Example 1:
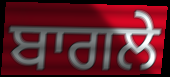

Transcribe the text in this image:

ਬਾਗਲੇ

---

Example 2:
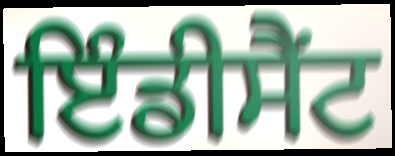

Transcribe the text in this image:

ਇੰਡੀਸੈਂਟ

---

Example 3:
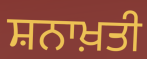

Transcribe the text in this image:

ਸ਼ਨਾਖ਼ਤੀ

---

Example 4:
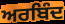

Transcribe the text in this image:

ਅਰਬਿੰਦ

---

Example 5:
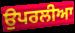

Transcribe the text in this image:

ਉਪਰਲੀਆ